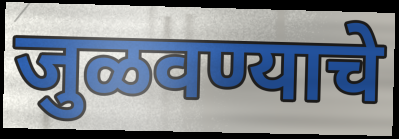
जुळवण्याचे